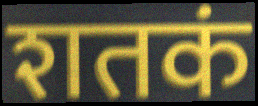
शतकं